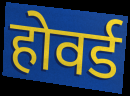
होवर्ड